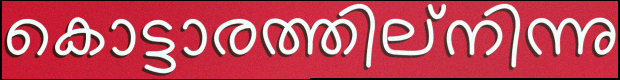
കൊട്ടാരത്തില്നിന്നു